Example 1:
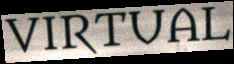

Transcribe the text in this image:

VIRTUAL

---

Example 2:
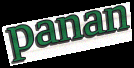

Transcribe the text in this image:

panan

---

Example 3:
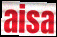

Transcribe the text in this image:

aisa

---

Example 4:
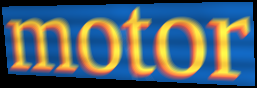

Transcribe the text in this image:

motor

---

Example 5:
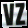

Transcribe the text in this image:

VZ